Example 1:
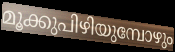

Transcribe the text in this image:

മൂക്കുപിഴിയുമ്പോഴും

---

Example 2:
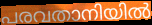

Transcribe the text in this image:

പരവതാനിയിൽ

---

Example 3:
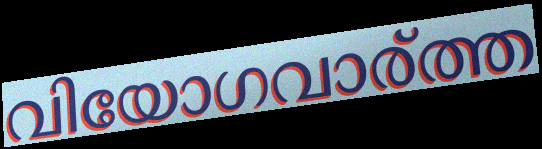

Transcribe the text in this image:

വിയോഗവാര്ത്ത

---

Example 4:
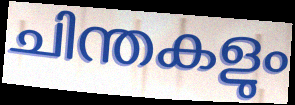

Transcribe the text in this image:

ചിന്തകളും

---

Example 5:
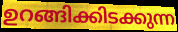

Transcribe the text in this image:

ഉറങ്ങിക്കിടക്കുന്ന